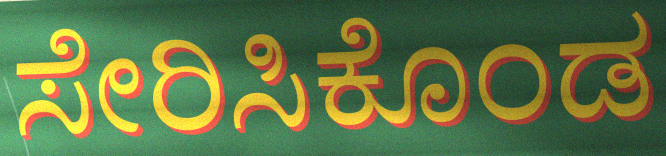
ಸೇರಿಸಿಕೊಂಡ